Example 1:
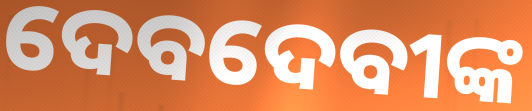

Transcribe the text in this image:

ଦେବଦେବୀଙ୍କ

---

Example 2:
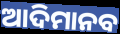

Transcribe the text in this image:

ଆଦିମାନବ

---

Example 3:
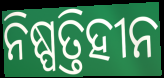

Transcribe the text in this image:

ନିଷ୍ପତ୍ତିହୀନ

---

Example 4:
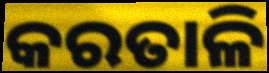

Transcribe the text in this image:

କରତାଳି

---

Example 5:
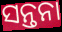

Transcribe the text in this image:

ସନ୍ତନା